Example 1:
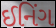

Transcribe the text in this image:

ઈનિંગ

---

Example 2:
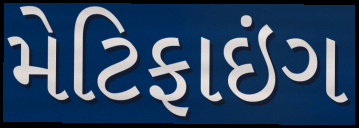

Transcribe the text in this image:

મેટિફાઇંગ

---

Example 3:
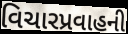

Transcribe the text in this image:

વિચારપ્રવાહની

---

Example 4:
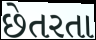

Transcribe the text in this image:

છેતરતા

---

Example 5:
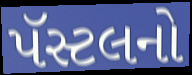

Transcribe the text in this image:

પૅસ્ટલનો